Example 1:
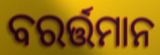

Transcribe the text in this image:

ବରର୍ତ୍ତମାନ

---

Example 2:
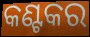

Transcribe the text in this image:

କଣ୍ଟକର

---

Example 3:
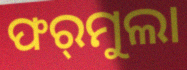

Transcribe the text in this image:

ଫର୍‌ମୁଲା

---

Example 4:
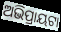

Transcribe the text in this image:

ଅଭିପ୍ରାୟଟା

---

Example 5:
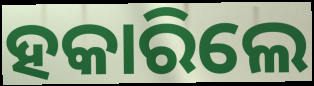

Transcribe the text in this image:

ହକାରିଲେ